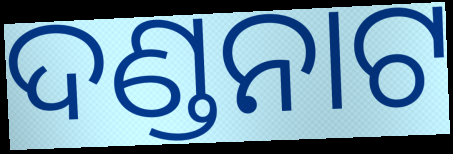
ଦଣ୍ଡନାଟ